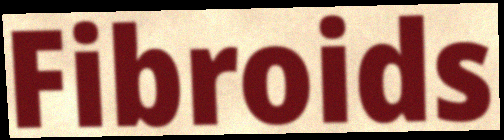
Fibroids